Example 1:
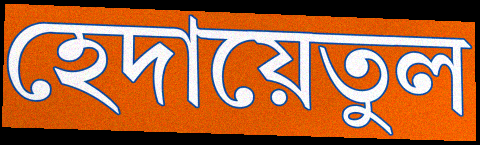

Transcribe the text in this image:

হেদায়েতুল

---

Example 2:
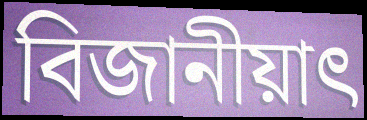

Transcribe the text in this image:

বিজানীয়াৎ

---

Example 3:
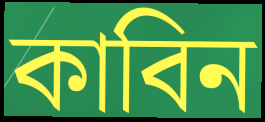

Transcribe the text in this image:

কাবিন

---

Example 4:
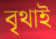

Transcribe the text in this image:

বৃথাই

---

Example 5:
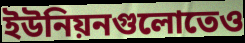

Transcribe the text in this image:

ইউনিয়নগুলোতেও